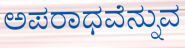
ಅಪರಾಧವೆನ್ನುವ